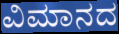
ವಿಮಾನದ